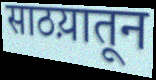
साठय़ातून